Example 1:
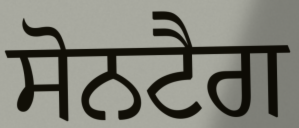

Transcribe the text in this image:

ਸੋਨਟੈਗ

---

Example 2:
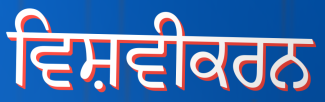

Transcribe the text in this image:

ਵਿਸ਼ਵੀਕਰਨ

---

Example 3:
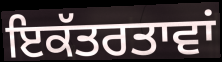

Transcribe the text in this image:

ਇਕੱਤਰਤਾਵਾਂ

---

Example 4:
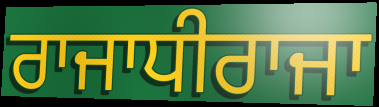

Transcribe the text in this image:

ਰਾਜਾਧੀਰਾਜਾ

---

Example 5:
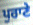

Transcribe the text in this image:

ਪੁਰਾਣੇ